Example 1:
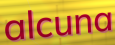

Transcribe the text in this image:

alcuna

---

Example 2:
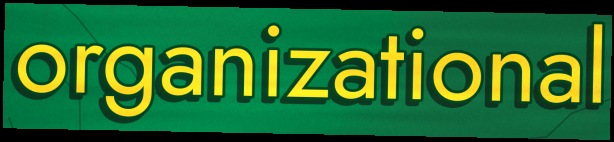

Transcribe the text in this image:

organizational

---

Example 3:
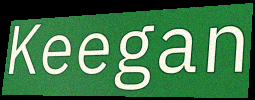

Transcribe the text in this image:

Keegan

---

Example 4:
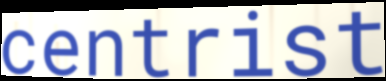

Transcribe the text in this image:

centrist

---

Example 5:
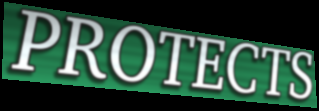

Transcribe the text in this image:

PROTECTS